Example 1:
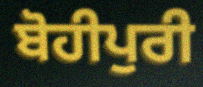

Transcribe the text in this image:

ਬੋਹੀਪੁਰੀ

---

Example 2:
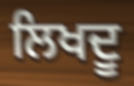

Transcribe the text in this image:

ਲਿਖਦੂ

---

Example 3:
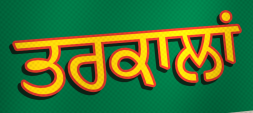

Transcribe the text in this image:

ਤਰਕਾਲਾਂ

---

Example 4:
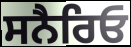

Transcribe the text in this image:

ਸਨੈਰਿਓ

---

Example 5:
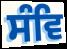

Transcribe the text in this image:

ਸੰਵਿ